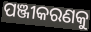
ପଞ୍ଜୀକରଣକୁ